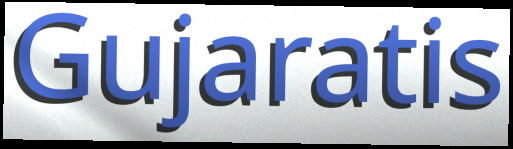
Gujaratis